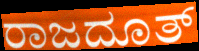
ರಾಜದೂತ್